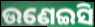
ଉଣେଇସି